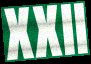
XXII